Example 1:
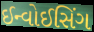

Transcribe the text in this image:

ઈન્વોઈસિંગ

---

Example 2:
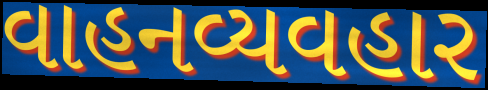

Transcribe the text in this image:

વાહનવ્યવહાર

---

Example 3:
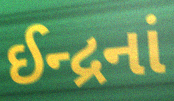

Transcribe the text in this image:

ઈન્દ્રનાં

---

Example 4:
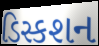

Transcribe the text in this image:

ડિસ્કશન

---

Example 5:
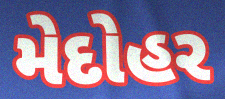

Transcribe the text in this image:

મેદોહર